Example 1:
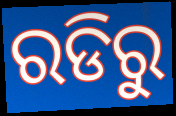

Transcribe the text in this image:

ରଡିରୁ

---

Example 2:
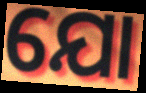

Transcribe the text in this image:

ଯୋ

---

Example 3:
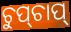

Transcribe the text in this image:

ଚୁପ୍‌ଚାପ୍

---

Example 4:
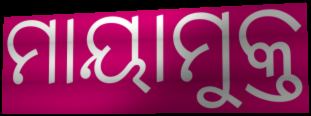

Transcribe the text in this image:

ମାୟାମୁକ୍ତ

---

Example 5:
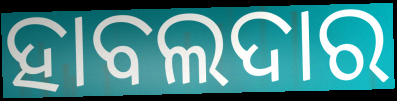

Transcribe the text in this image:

ହାବଲଦାର